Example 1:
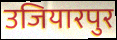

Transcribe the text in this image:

उजियारपुर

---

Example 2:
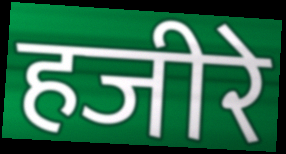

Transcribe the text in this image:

हजीरे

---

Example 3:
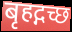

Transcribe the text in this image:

बृहद्गच्छ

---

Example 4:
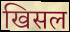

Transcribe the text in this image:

खिसल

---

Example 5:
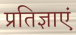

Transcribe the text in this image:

प्रतिज्ञाएं